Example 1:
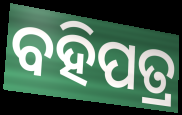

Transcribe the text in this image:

ବହିପତ୍ର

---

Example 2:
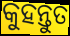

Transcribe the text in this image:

କୁହନ୍ତୁତ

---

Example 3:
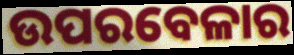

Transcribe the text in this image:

ଉପରବେଳାର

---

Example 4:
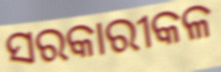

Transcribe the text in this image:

ସରକାରୀକଳ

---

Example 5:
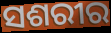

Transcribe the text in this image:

ସଶରୀର